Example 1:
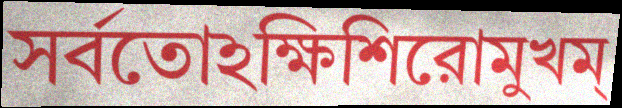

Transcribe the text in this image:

সর্বতোঽক্ষিশিরোমুখম্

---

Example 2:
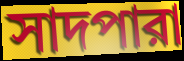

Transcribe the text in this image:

সাদপারা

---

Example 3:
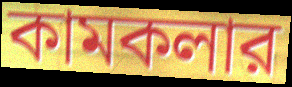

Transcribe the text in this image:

কামকলার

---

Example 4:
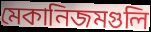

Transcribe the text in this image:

মেকানিজমগুলি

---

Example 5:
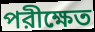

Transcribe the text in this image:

পরীক্ষেত